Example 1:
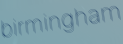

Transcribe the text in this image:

birmingham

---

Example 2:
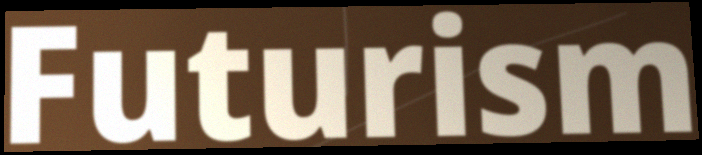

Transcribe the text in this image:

Futurism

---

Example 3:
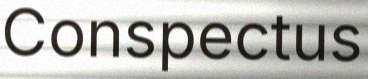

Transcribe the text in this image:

Conspectus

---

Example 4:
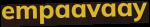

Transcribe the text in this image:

empaavaay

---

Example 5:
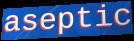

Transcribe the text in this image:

aseptic